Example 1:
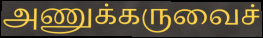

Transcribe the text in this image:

அணுக்கருவைச்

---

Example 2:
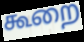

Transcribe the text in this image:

கூறை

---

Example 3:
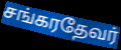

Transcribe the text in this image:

சங்கரதேவர்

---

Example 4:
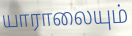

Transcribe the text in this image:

யாராலையும்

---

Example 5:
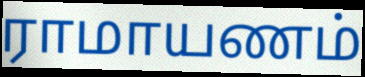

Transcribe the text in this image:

ராமாயணம்